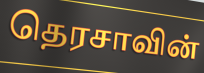
தெரசாவின்